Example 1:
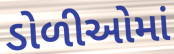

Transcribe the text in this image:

ડોળીઓમાં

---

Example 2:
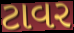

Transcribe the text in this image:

ટાવર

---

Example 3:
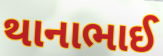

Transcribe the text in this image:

થાનાભાઈ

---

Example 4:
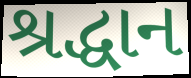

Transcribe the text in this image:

શ્રદ્ધાન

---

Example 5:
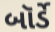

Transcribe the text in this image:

બૉર્ડે